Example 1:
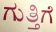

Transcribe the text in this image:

ಗುತ್ತಿಗೆ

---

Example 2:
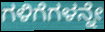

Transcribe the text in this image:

ಗಳಿಗೆಗಳನ್ನೇ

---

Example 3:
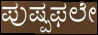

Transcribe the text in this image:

ಪುಷ್ಪಫಲೇ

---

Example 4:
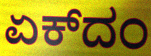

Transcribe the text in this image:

ಏಕ್‌ದಂ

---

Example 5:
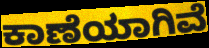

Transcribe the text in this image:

ಕಾಣೆಯಾಗಿವೆ